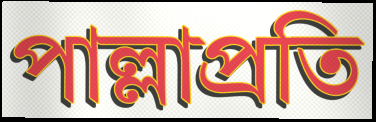
পাল্লাপ্রতি